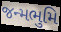
જન્મભુમિ